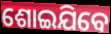
ଶୋଇଯିବେ